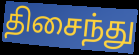
திசைந்து